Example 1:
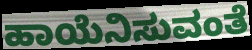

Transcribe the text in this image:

ಹಾಯೆನಿಸುವಂತೆ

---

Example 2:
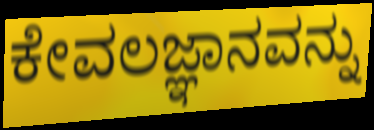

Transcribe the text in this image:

ಕೇವಲಜ್ಞಾನವನ್ನು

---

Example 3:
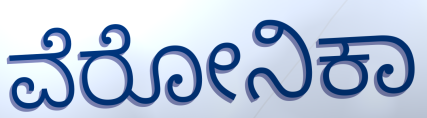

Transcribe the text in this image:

ವೆರೋನಿಕಾ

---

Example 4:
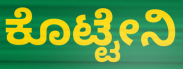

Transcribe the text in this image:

ಕೊಟ್ಟೇನಿ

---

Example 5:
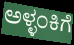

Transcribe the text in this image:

ಅಳ್ಳಂಕಿಗೆ